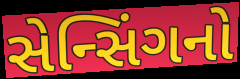
સેન્સિંગનો